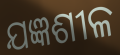
ଯଜ୍ଞଶୀଳ